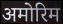
अमोरिम